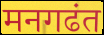
मनगढंत